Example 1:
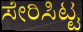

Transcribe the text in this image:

ಸೇರಿಸಿಟ್ಟ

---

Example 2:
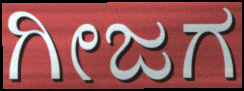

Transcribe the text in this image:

ಗೀಜಗ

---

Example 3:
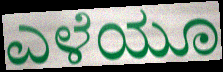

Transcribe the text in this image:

ಎಳೆಯೂ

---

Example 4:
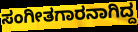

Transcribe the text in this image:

ಸಂಗೀತಗಾರನಾಗಿದ್ದ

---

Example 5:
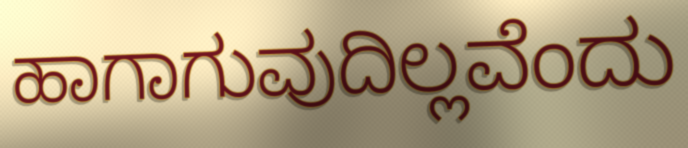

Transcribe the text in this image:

ಹಾಗಾಗುವುದಿಲ್ಲವೆಂದು